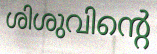
ശിശുവിന്റെ